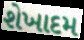
શેખાદમ